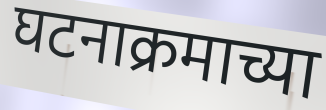
घटनाक्रमाच्या